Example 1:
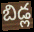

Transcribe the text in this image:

బిడ్ల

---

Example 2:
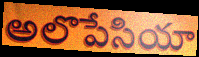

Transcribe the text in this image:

అలొపేసియా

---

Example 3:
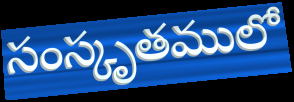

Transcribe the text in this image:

సంస్కృతములో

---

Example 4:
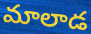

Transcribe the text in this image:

మాలాడ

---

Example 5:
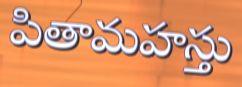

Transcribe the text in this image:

పితామహస్తు